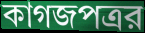
কাগজপত্রর